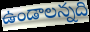
ఉండాలన్నది